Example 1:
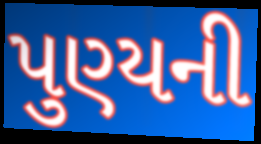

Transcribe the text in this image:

પુણ્યની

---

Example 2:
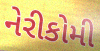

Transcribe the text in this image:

નેરીકોમી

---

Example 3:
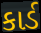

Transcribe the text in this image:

કાર્ડ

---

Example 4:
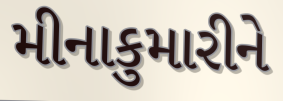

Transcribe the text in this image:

મીનાકુમારીને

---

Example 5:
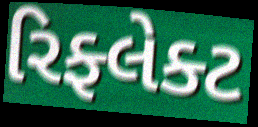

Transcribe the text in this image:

રિફ્લેક્ટ